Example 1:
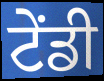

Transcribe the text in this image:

ਟੇਂਡੀ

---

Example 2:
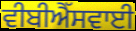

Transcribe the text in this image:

ਵੀਬੀਐੱਸਵਾਈ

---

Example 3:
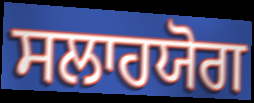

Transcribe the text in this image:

ਸਲਾਹਯੋਗ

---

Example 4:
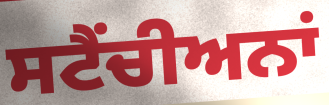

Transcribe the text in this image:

ਸਟੈਂਚੀਅਨਾਂ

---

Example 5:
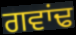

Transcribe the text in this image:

ਗਵਾਂਢ